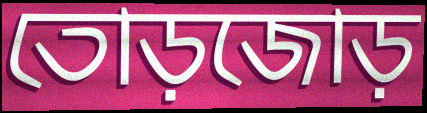
তোড়জোড়